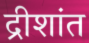
द्रीशांत